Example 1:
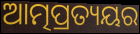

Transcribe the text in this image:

ଆତ୍ମପ୍ରତ୍ୟୟର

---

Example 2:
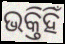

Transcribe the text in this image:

ଭକ୍ତିହିଁ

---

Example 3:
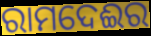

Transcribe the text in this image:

ରାମଦେଈର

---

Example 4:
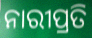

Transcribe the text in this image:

ନାରୀପ୍ରତି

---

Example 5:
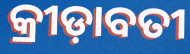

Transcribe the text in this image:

କ୍ରୀଡ଼ାବତୀ